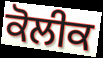
ਕੋਲੀਕ